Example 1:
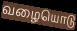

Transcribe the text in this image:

வழையொடு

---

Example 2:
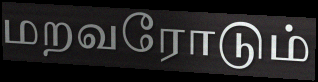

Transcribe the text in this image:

மறவரோடும்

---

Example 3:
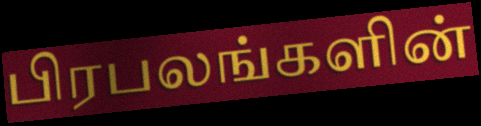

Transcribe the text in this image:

பிரபலங்களின்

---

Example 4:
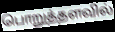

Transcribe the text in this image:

பொறுத்தளவில்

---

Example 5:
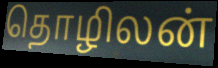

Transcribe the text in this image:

தொழிலன்